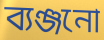
ব্যঞ্জনো